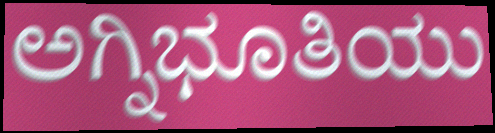
ಅಗ್ನಿಭೂತಿಯು